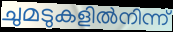
ചുമടുകളിൽനിന്ന്